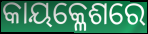
କାୟକ୍ଳେଶରେ